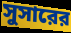
সুসারের